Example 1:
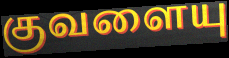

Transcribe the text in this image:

குவளையு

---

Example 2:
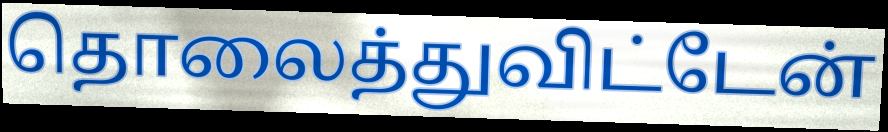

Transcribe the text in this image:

தொலைத்துவிட்டேன்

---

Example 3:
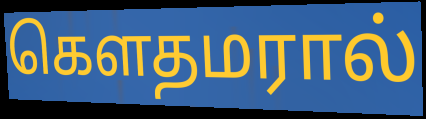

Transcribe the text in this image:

கௌதமரால்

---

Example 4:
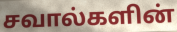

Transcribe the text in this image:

சவால்களின்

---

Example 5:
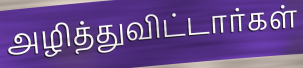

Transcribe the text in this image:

அழித்துவிட்டார்கள்